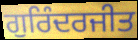
ਗੁਰਿੰਦਰਜੀਤ